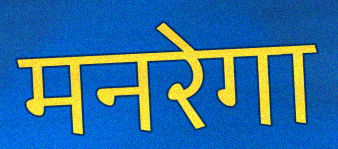
मनरेगा